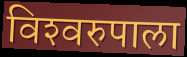
विश्वरुपाला